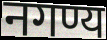
नगण्य